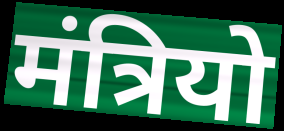
मंत्रियो